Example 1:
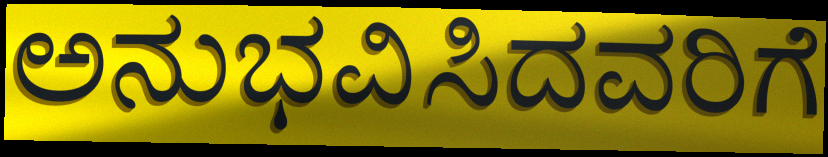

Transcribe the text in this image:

ಅನುಭವಿಸಿದವರಿಗೆ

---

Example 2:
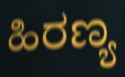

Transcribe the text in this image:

ಹಿರಣ್ಯ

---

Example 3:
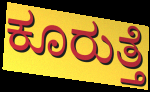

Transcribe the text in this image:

ಕೂರುತ್ತೆ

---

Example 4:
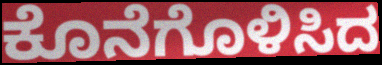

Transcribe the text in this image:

ಕೊನೆಗೊಳಿಸಿದ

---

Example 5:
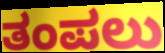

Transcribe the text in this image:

ತಂಪಲು